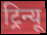
ट्रिन्यू